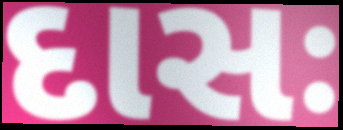
દાસઃ